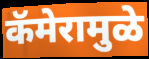
कॅमेरामुळे